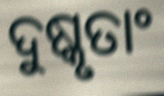
ଦୁଷ୍କୃତାଂ